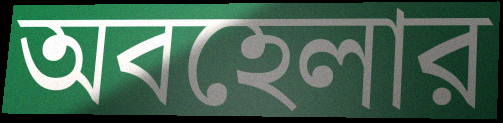
অবহেলার